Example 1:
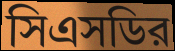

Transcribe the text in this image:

সিএসডির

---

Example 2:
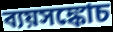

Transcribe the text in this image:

ব্যয়সঙ্কোচ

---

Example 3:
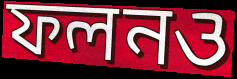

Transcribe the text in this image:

ফলনও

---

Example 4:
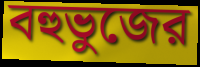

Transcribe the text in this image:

বহুভুজের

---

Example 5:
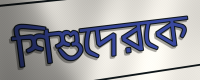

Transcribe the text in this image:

শিশুদেরকে